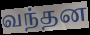
வந்தன